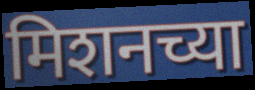
मिशनच्या